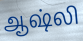
ஆஷ்லி